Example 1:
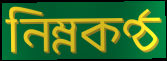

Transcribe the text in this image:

নিম্নকণ্ঠ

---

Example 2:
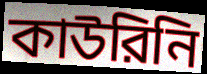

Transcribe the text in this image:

কাউরিনি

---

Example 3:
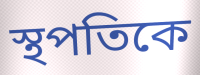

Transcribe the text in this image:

স্থপতিকে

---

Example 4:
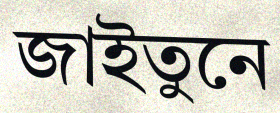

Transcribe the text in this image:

জাইতুনে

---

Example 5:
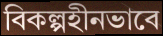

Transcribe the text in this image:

বিকল্পহীনভাবে